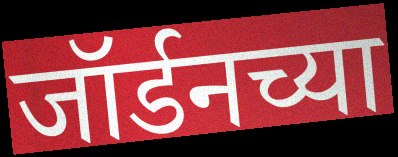
जॉर्डनच्या